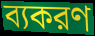
ব্যকরণ